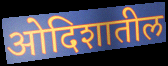
ओदिशातील